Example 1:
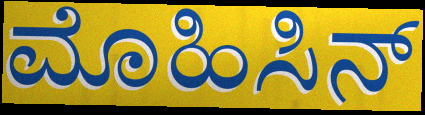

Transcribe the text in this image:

ಮೊಹಿಸಿನ್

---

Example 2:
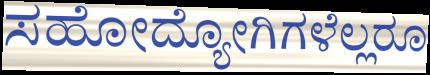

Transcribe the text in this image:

ಸಹೋದ್ಯೋಗಿಗಳೆಲ್ಲರೂ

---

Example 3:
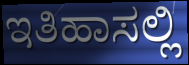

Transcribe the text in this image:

ಇತಿಹಾಸಲ್ಲಿ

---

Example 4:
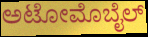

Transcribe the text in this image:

ಅಟೋಮೊಬೈಲ್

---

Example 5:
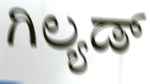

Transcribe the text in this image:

ಗಿಲ್ಯಡ್